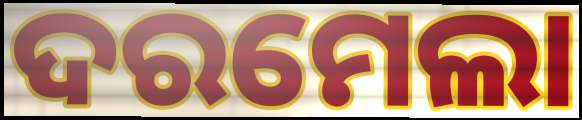
ଦରମେଲା